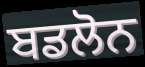
ਬਡਲੋਨ